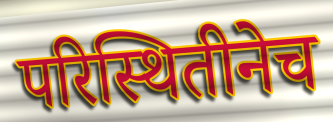
परिस्थितीनेच